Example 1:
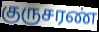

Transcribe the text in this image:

குருசரண்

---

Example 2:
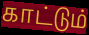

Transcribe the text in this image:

காட்டும்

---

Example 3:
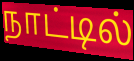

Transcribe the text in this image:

நாட்டில்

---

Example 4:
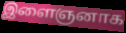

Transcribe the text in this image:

இளைஞனாக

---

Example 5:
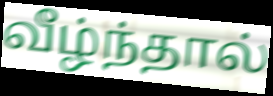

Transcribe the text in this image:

வீழ்ந்தால்